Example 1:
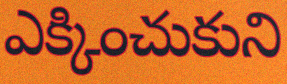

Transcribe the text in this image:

ఎక్కించుకుని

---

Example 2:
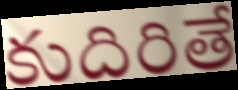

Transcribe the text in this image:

కుదిరితే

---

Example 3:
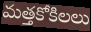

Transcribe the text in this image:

మత్తకోకిలలు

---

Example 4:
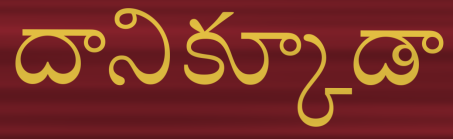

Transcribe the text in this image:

దానిక్కూడా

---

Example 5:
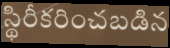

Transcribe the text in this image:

స్థిరీకరించబడిన